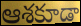
ఆశకూడా